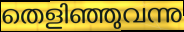
തെളിഞ്ഞുവന്നു